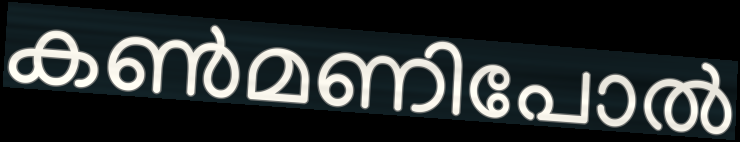
കൺമണിപോൽ